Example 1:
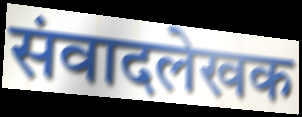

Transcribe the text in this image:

संवादलेखक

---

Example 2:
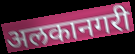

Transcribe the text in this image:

अलकानगरी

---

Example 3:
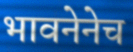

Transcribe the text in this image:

भावनेनेच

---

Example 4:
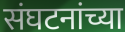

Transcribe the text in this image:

संघटनांच्या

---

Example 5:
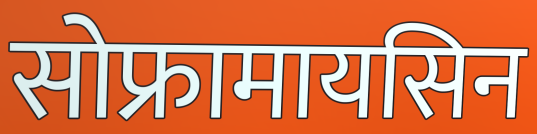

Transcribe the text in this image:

सोफ्रामायसिन